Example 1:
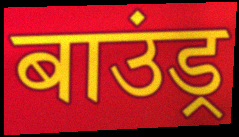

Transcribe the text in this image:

बाउंड्र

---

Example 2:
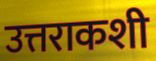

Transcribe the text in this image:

उत्तराकशी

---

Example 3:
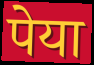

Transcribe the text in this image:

पेया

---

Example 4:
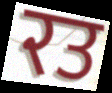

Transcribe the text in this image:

रउ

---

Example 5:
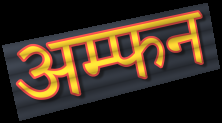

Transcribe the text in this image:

अम्फन